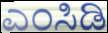
ಎಂಸಿಡಿ